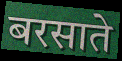
बरसाते